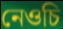
নেওচি